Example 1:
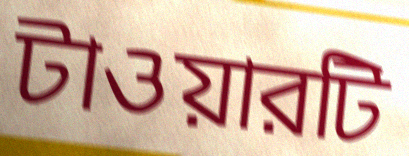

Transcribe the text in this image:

টাওয়ারটি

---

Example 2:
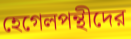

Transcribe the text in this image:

হেগেলপন্থীদের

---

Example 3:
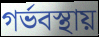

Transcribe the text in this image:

গর্ভবস্থায়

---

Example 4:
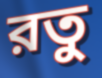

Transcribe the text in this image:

রতু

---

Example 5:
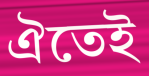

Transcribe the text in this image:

ঐতেই